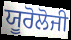
ਯੂਰੋਲੋਜੀ